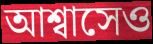
আশ্বাসেও